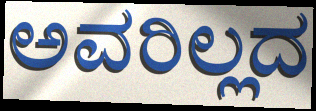
ಅವರಿಲ್ಲದ